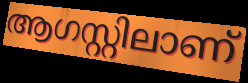
ആഗസ്റ്റിലാണ്